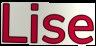
Lise